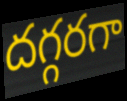
దగ్గరగా